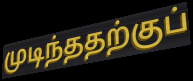
முடிந்ததற்குப்